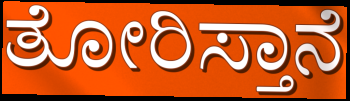
ತೋರಿಸ್ತಾನೆ